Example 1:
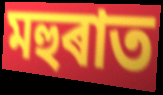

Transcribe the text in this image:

মহুৰাত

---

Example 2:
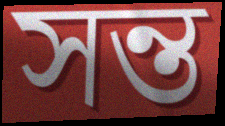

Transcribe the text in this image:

সন্ত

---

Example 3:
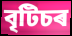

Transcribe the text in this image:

বৃটিচৰ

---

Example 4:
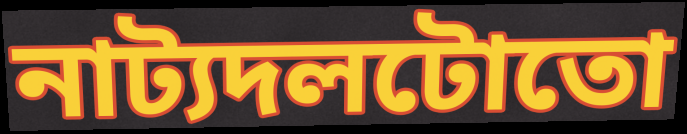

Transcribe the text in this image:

নাট্যদলটোতো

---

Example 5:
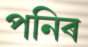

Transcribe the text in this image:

পনিৰ